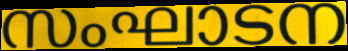
സംഘാടന